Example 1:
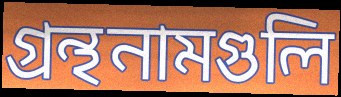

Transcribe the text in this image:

গ্রন্থনামগুলি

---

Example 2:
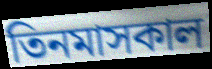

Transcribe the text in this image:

তিনমাসকাল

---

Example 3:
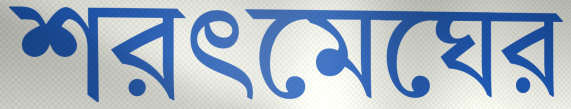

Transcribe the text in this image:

শরৎমেঘের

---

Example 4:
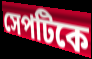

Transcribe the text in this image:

সেপটিকে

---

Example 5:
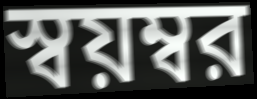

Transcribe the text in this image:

স্বয়ম্বর